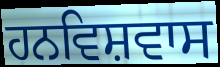
ਹਨਵਿਸ਼ਵਾਸ